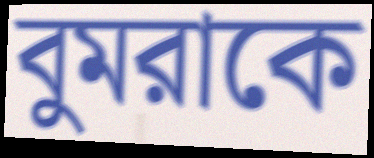
বুমরাকে